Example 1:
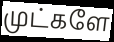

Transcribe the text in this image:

முட்களே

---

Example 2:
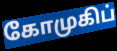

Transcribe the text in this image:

கோமுகிப்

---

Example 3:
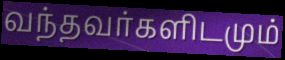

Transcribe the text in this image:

வந்தவர்களிடமும்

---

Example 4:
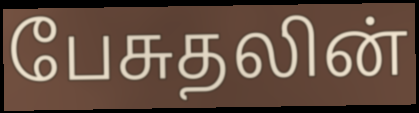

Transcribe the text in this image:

பேசுதலின்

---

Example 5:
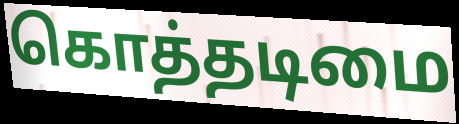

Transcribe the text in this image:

கொத்தடிமை